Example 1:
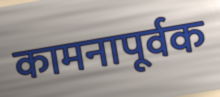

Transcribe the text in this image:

कामनापूर्वक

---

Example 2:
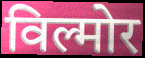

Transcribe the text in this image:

विल्मोर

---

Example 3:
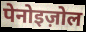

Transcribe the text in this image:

पेनोइज़ोल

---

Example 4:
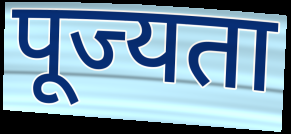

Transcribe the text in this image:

पूज्यता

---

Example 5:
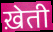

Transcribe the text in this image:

ख़ेती